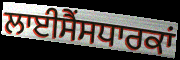
ਲਾਈਸੈਂਸਧਾਰਕਾਂ